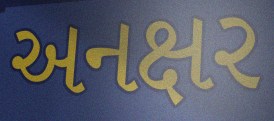
અનક્ષર